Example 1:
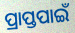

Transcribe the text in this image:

ପ୍ରାପ୍ତପାଇଁ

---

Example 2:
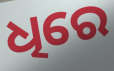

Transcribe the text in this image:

ଧିରେ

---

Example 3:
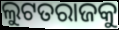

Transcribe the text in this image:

ଲୁଟତରାଜକୁ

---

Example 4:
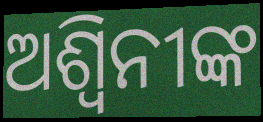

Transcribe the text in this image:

ଅଶ୍ୱିନୀଙ୍କ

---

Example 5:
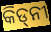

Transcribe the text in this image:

କିଡ୍‍ନୀ